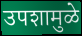
उपशामुळे